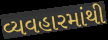
વ્યવહારમાંથી